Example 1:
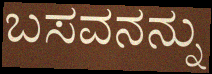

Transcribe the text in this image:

ಬಸವನನ್ನು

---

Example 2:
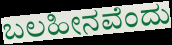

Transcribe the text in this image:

ಬಲಹೀನವೆಂದು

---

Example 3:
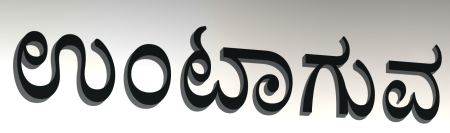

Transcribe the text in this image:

ಉಂಟಾಗುವ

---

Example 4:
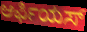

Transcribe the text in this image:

ಆರ್ಫಿಯಸ್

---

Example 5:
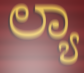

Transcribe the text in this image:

ಲ್ಯಾ